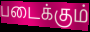
படைக்கும்